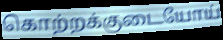
கொற்றக்குடையோய்